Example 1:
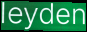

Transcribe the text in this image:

Ieyden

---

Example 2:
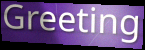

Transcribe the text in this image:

Greeting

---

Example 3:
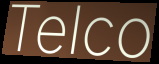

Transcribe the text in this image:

Telco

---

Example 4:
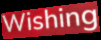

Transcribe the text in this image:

Wishing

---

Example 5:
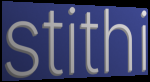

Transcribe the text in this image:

stithi